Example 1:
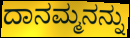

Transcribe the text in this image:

ದಾನಮ್ಮನನ್ನು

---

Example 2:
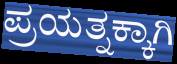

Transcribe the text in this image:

ಪ್ರಯತ್ನಕ್ಕಾಗಿ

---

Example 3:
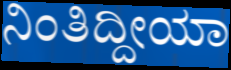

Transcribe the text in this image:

ನಿಂತಿದ್ದೀಯಾ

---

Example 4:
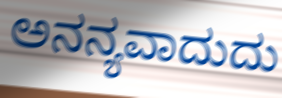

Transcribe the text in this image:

ಅನನ್ಯವಾದುದು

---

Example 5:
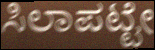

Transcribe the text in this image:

ಸಿಲಾಪಟ್ಟೇ